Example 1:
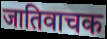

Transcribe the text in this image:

जातिवाचक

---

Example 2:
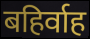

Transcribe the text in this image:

बहिर्वाह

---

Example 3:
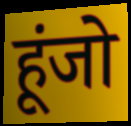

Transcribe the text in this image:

हूंजो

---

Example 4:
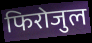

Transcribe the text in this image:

फिरोजुल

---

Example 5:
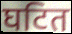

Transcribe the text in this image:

घटित